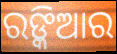
ରଙ୍କିଆର